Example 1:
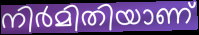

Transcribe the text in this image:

നിർമിതിയാണ്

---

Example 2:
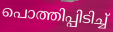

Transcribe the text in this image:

പൊത്തിപ്പിടിച്ച്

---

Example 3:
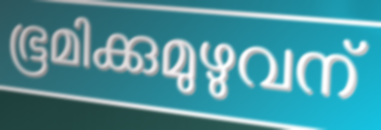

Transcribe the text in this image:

ഭൂമിക്കുമുഴുവന്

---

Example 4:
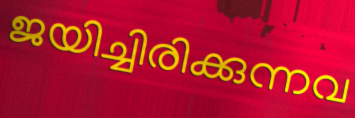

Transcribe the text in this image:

ജയിച്ചിരിക്കുന്നവ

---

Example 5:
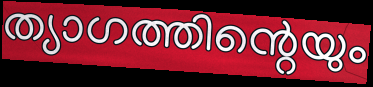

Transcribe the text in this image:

ത്യാഗത്തിന്റെയും